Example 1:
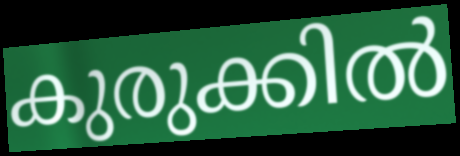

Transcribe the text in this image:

കുരുക്കിൽ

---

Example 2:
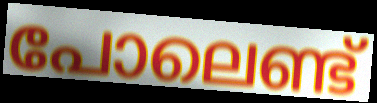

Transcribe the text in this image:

പോലെണ്ട്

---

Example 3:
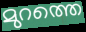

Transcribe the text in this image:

മുറത്തെ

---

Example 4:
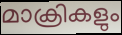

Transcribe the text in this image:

മാക്രികളും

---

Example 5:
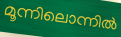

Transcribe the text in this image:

മൂന്നിലൊന്നിൽ